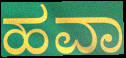
ಹವಾ